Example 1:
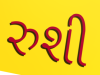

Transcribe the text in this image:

રુશી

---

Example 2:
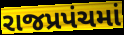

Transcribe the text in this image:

રાજપ્રપંચમાં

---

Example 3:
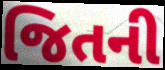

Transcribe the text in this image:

જિતની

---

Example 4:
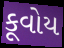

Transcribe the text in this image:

કૂવોય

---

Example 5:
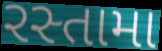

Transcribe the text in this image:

રસ્તામા